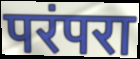
परंपरा